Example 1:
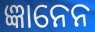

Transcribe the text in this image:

ଜ୍ଞାନେନ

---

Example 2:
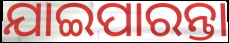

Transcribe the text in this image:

ଯାଇପାରନ୍ତା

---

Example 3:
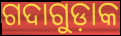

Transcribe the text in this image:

ଗଦାଗୁଡ଼ାକ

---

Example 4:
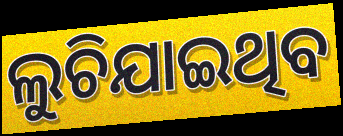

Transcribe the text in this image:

ଲୁଚିଯାଇଥିବ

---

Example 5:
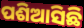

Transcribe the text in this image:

ପଶିଆସିଛି